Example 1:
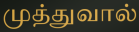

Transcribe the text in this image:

முத்துவால்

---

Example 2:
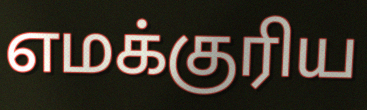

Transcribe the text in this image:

எமக்குரிய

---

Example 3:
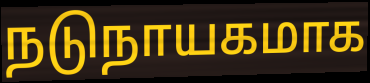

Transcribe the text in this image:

நடுநாயகமாக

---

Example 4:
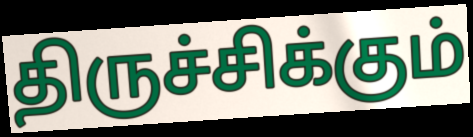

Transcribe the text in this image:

திருச்சிக்கும்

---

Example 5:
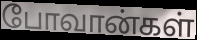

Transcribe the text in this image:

போவான்கள்